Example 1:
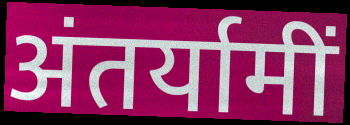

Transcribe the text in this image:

अंतर्यामीं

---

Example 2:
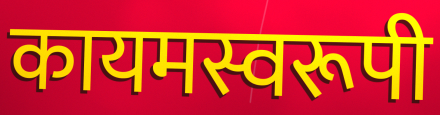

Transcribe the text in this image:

कायमस्वरूपी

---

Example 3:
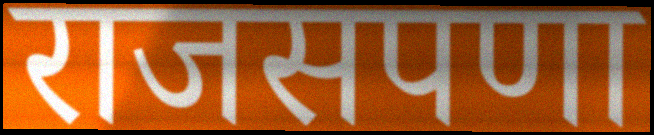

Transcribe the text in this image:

राजसपणा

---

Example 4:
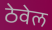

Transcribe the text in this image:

ठेवेल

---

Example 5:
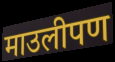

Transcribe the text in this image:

माउलीपण